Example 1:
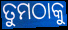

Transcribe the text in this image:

ତୁମଠାକୁ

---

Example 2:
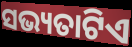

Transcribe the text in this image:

ସଭ୍ୟତାଟିଏ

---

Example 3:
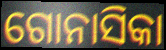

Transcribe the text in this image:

ଗୋନାସିକା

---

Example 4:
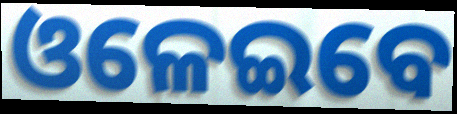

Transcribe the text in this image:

ଓଳେଇବେ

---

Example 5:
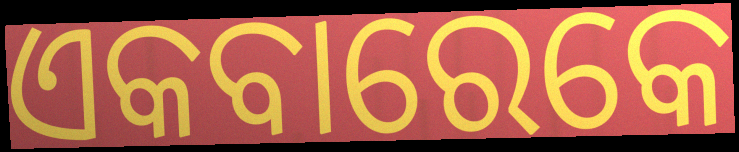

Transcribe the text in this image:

ଏକବାରେକେ